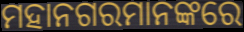
ମହାନଗରମାନଙ୍କରେ